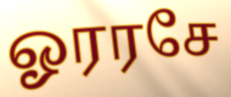
ஓரரசே